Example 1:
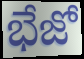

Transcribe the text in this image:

భేజో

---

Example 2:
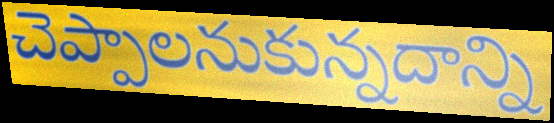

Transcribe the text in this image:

చెప్పాలనుకున్నదాన్ని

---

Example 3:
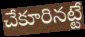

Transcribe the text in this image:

చేకూరినట్టే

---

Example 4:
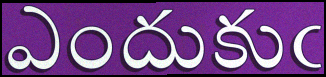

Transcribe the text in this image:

ఎందుకుఁ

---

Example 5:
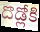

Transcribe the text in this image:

దొడ్లోకి